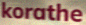
korathe